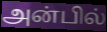
அன்பில்